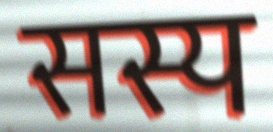
सस्य